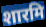
शारमि